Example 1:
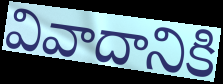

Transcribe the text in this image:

వివాదానికి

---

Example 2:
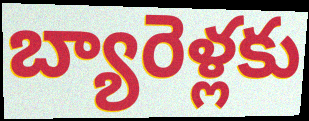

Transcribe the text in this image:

బ్యారెళ్లకు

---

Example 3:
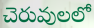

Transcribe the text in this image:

చెరువులలో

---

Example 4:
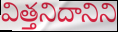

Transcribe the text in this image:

విత్తనిదానిని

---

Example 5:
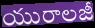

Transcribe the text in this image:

యురాలజీ